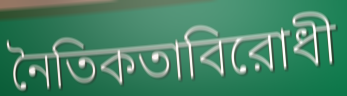
নৈতিকতাবিরোধী